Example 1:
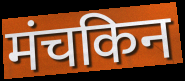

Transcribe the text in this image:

मंचकिन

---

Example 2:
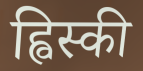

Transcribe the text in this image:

ह्विस्की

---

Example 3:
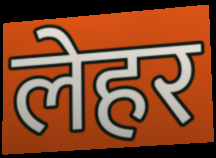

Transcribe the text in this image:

लेहर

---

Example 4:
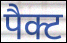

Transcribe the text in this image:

पैक्ट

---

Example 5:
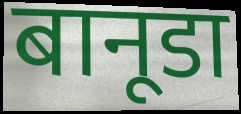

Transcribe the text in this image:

बानूडा